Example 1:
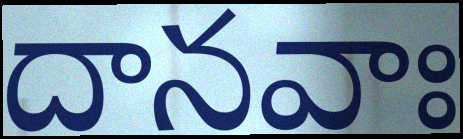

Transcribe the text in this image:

దానవాః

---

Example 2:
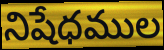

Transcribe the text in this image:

నిషేధముల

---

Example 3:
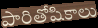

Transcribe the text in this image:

పారితోషికాలు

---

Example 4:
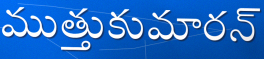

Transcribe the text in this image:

ముత్తుకుమారన్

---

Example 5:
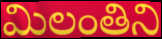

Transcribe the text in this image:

మిలంతిని